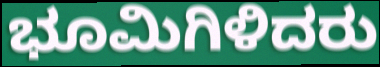
ಭೂಮಿಗಿಳಿದರು